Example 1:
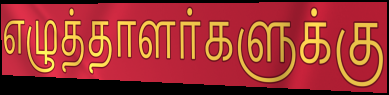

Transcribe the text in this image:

எழுத்தாளர்களுக்கு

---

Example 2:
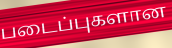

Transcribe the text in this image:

படைப்புகளான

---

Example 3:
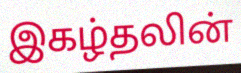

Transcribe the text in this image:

இகழ்தலின்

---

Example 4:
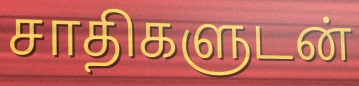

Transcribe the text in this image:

சாதிகளுடன்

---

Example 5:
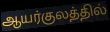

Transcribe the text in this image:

ஆயர்குலத்தில்